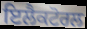
ਇਲੈਕਟੋਰਲ